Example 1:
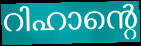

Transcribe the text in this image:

റിഹാന്റെ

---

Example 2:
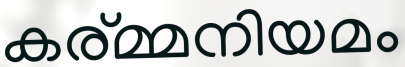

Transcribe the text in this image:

കര്മ്മനിയമം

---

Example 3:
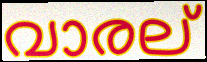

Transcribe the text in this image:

വാരല്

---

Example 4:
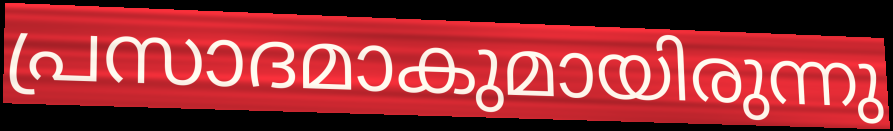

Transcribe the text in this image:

പ്രസാദമാകുമായിരുന്നു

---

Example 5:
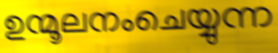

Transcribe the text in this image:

ഉന്മൂലനംചെയ്യുന്ന